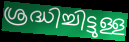
ശ്രദ്ധിച്ചിട്ടുള്ള